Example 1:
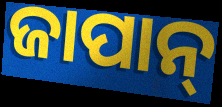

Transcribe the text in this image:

ଜାପାନ୍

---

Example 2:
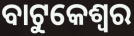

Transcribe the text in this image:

ବାଟୁକେଶ୍ୱର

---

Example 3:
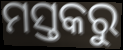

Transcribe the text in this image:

ମସ୍ତକରୁ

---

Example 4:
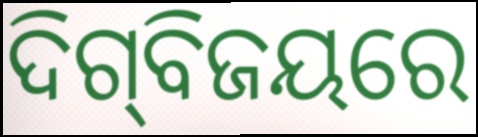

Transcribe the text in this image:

ଦିଗ୍‌ବିଜୟରେ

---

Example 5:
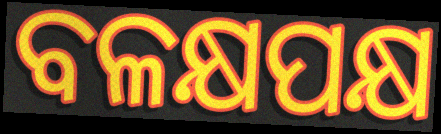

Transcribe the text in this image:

ବଳକ୍ଷପକ୍ଷ